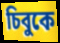
চিবুকে